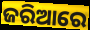
ଜରିଆରେ